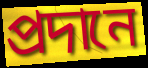
প্ৰদানে